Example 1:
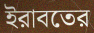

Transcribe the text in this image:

ইরাবতের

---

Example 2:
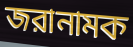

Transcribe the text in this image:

জরানামক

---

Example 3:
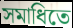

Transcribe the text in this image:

সমাধিতে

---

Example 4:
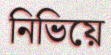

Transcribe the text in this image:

নিভিয়ে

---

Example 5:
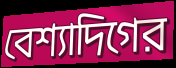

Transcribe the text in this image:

বেশ্যাদিগের